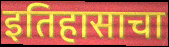
इतिहासाचा